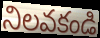
నిలవకండి